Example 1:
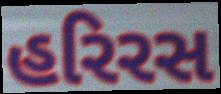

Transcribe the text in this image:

હરિરસ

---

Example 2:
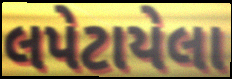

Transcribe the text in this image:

લપેટાયેલા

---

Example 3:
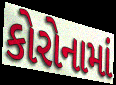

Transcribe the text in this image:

કોરોનામાં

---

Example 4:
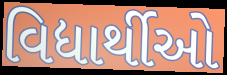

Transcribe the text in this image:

વિદ્યાર્થીઓ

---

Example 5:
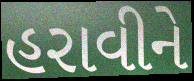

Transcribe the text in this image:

હરાવીને